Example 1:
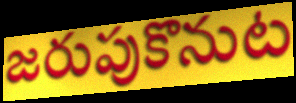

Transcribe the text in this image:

జరుపుకొనుట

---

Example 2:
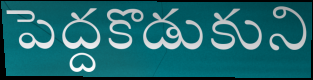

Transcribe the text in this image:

పెద్దకొడుకుని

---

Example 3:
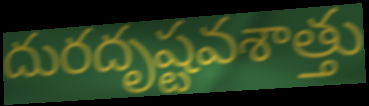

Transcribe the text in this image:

దురదృష్టవశాత్తు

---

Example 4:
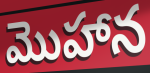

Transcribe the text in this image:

మొహాన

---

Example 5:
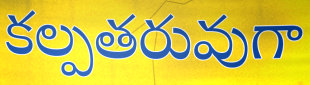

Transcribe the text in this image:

కల్పతరువుగా